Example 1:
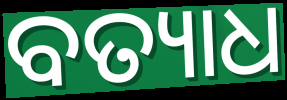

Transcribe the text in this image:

ବତ୍ୟାଧ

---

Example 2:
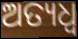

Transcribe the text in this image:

ଅତ୍ୟଧ୍ୱ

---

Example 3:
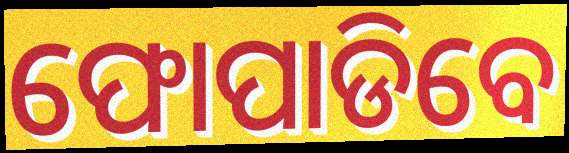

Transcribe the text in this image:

ଫୋପାଡିବେ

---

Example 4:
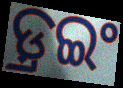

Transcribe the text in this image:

ଡ଼୍ରଇଂ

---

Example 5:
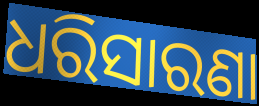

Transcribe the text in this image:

ଧରିସାରଣା